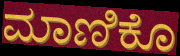
ಮಾಣಿಕೊ